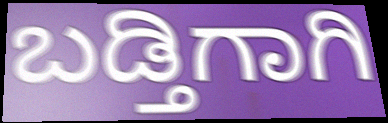
ಬಡ್ತಿಗಾಗಿ